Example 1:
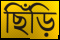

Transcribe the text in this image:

ছিঁড়ি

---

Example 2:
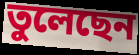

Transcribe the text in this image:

তুলেছেন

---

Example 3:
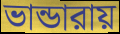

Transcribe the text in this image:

ভান্ডারায়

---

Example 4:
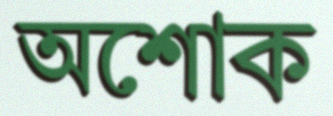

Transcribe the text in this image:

অশোক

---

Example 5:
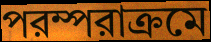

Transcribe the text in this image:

পরম্পরাক্রমে